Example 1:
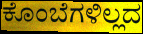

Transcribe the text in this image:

ಕೊಂಬೆಗಳಿಲ್ಲದ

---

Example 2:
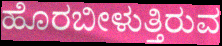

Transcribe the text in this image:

ಹೊರಬೀಳುತ್ತಿರುವ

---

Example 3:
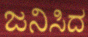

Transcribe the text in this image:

ಜನಿಸಿದ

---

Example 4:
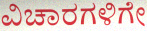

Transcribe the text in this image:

ವಿಚಾರಗಳಿಗೇ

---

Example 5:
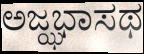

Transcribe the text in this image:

ಅಜ್ಝಭಾಸಥ